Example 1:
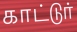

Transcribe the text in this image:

காட்டுர்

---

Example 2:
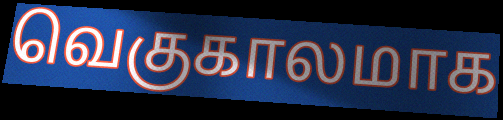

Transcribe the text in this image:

வெகுகாலமாக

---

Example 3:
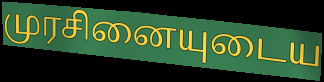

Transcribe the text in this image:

முரசினையுடைய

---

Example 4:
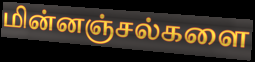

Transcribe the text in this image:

மின்னஞ்சல்களை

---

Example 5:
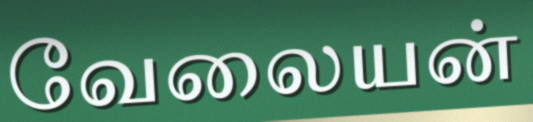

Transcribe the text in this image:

வேலையன்